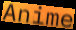
Anime